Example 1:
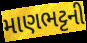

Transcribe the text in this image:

માણભટ્ટની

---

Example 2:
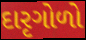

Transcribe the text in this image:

દારૃગોળો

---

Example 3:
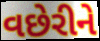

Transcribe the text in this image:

વછેરીને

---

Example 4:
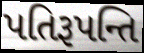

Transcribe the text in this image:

પતિરૂપન્તિ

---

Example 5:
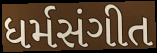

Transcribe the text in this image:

ધર્મસંગીત